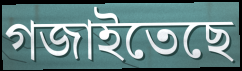
গজাইতেছে